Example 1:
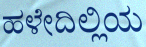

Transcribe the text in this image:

ಹಳೇದಿಲ್ಲಿಯ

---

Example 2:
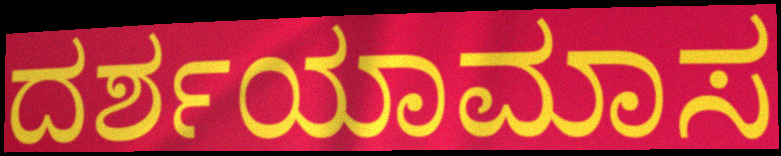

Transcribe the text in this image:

ದರ್ಶಯಾಮಾಸ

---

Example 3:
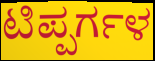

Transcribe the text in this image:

ಟಿಪ್ಪರ್ಗಳ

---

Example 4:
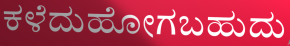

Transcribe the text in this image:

ಕಳೆದುಹೋಗಬಹುದು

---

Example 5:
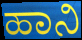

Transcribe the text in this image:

ಹಾನಿ